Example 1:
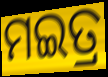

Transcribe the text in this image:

ମଇତ୍ର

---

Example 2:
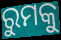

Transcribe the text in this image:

ରୁମକୁ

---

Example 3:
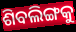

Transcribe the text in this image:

ଶିବଲିଙ୍ଗକୁ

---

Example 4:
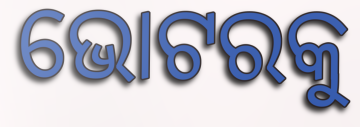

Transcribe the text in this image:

ଭୋଟରକୁ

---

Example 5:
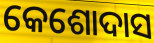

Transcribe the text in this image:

କେଶୋଦାସ